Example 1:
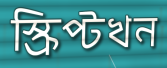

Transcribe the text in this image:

স্ক্ৰিপ্টখন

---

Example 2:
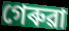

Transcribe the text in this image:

গেৰুৱা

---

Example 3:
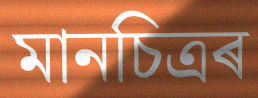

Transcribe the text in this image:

মানচিত্ৰৰ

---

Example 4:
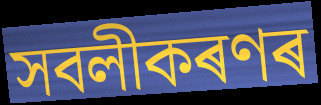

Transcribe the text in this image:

সবলীকৰণৰ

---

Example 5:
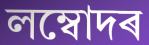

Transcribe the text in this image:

লম্বোদৰ